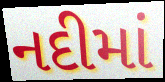
નદીમાં